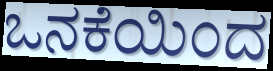
ಒನಕೆಯಿಂದ